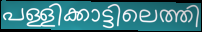
പള്ളിക്കാട്ടിലെത്തി